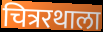
चित्ररथाला